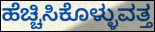
ಹೆಚ್ಚಿಸಿಕೊಳ್ಳುವತ್ತ